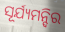
ସୂର୍ଯ୍ୟମନ୍ଦିର